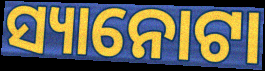
ସ୍ୟାନୋଟା